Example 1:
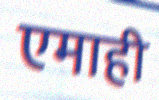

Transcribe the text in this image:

एमाही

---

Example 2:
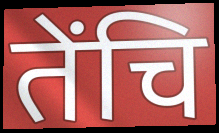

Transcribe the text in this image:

तेंचि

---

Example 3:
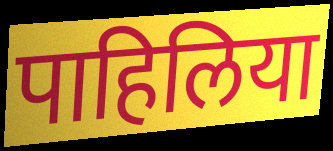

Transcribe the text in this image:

पाहिलिया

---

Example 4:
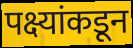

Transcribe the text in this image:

पक्ष्यांकडून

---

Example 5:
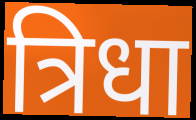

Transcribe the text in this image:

त्रिधा